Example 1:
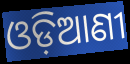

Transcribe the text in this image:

ଓଡ଼ିଆଣୀ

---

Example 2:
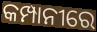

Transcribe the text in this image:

କମ୍ପାନୀରେ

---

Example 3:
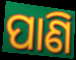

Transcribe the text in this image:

ପାଣି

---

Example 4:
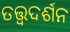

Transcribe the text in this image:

ତତ୍ତ୍ଵଦର୍ଶନ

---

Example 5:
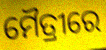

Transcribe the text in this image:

ମୈତ୍ରୀରେ